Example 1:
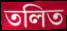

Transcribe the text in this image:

তলিত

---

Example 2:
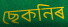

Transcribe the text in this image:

ছেকনিৰ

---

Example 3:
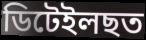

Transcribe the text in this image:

ডিটেইলছত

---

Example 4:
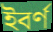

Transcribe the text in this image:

ইবৰ্ণ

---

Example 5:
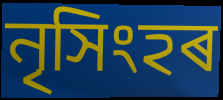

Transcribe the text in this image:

নৃসিংহৰ